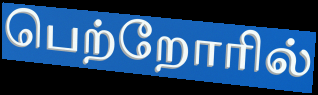
பெற்றோரில்